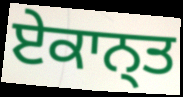
ਏਕਾਨ੍ਤ